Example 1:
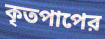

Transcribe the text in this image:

কৃতপাপের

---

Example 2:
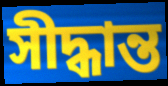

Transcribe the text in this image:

সীদ্ধান্ত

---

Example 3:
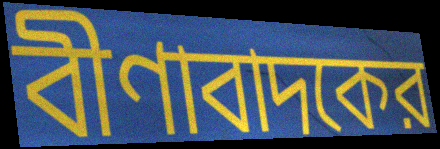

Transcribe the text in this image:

বীণাবাদকের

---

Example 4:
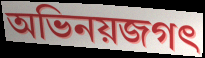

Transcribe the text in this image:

অভিনয়জগৎ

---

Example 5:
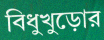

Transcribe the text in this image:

বিধুখুড়োর